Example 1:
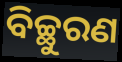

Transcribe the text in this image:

ବିଚ୍ଛୁରଣ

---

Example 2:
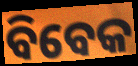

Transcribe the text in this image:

ବିବେକ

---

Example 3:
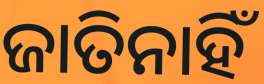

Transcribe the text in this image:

ଜାତିନାହିଁ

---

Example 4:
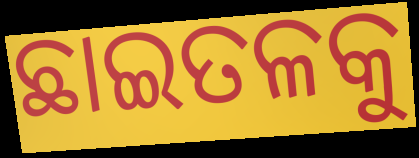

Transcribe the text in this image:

ଛାଇତଳକୁ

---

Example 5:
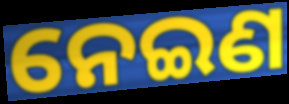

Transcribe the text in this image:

ନେଇଣ